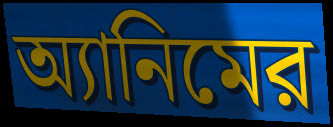
অ্যানিমের